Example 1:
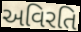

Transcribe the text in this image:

અવિરતિ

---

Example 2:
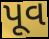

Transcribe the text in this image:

પૂવ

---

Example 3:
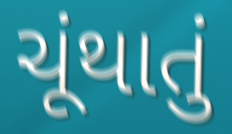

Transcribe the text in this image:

ચૂંથાતું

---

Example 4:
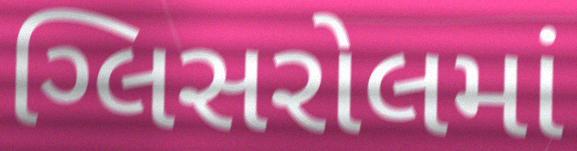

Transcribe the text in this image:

ગ્લિસરોલમાં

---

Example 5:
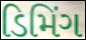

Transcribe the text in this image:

ડિમિંગ